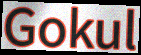
Gokul